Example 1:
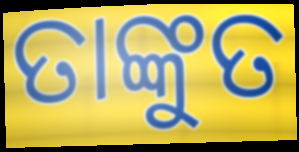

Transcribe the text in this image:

ତାଙ୍କୁତ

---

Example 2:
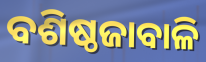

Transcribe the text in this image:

ବଶିଷ୍ଠଜାବାଳି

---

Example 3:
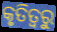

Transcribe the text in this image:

କୃତିତ୍ଵରୁ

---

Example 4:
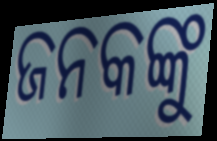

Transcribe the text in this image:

ଜନକଙ୍କୁ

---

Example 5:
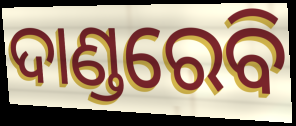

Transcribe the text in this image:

ଦାଣ୍ଡରେବି